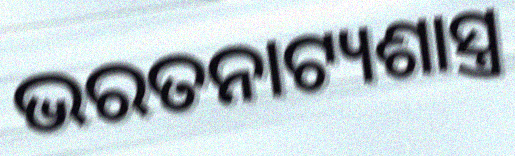
ଭରତନାଟ୍ୟଶାସ୍ତ୍ର